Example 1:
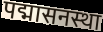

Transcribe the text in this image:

पद्मासनस्था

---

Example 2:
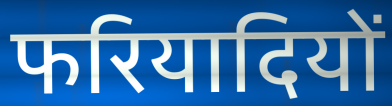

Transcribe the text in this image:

फरियादियों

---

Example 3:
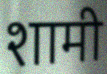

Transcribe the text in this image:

शामी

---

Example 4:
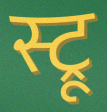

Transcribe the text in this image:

स्ट्रू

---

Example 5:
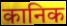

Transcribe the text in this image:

कानिक